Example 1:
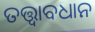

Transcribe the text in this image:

ତତ୍ତ୍ବାବଧାନ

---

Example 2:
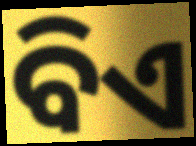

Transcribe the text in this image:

ବିଏ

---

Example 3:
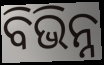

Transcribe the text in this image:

ବିଭିନ୍ନ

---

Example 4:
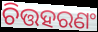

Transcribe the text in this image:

ଚିତ୍ତହରଣଂ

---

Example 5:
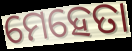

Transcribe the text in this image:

ମେହେତା